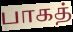
பாகத்